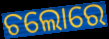
ଚଲୋରେ